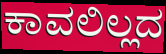
ಕಾವಲಿಲ್ಲದ